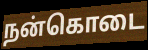
நன்கொடை